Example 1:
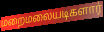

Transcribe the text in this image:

மறைமலையடிகளார்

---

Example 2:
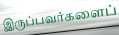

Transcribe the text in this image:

இருப்பவர்களைப்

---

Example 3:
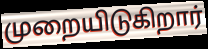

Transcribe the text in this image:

முறையிடுகிறார்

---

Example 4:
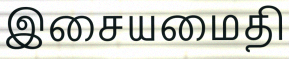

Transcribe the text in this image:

இசையமைதி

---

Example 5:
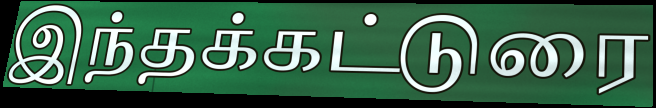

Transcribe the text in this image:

இந்தக்கட்டுரை